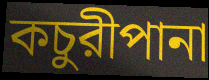
কচুরীপানা